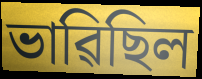
ভাৱিছিল